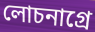
লোচনাগ্রে